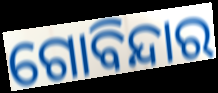
ଗୋବିନ୍ଦାର